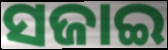
ସଜାଇ